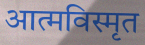
आत्मविस्मृत